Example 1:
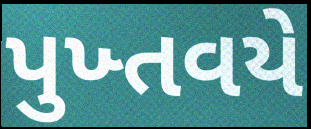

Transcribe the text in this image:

પુખ્તવયે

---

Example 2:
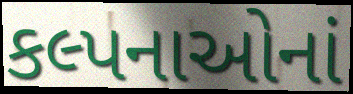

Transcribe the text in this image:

કલ્પનાઓનાં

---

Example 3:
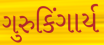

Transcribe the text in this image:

ગુરુકિંગાર્ય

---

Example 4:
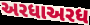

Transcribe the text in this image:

અરધાઅરધ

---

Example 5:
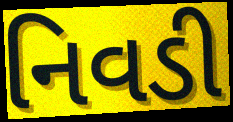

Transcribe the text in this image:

નિવડી